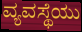
ವ್ಯವಸ್ಥೆಯು